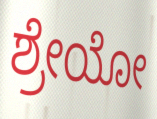
ಶ್ರೇಯೋ